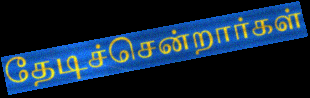
தேடிச்சென்றார்கள்